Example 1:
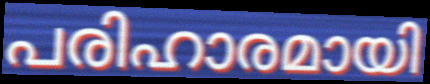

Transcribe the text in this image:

പരിഹാരമായി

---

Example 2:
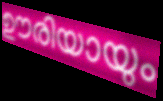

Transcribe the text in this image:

ഊരിയായും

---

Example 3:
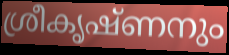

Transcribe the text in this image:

ശ്രീകൃഷ്ണനും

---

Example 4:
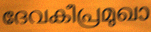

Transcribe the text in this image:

ദേവകീപ്രമുഖാ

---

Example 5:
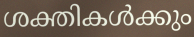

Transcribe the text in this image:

ശക്തികൾക്കും